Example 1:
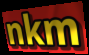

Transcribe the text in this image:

nkm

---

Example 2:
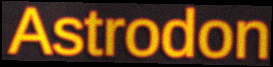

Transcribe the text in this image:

Astrodon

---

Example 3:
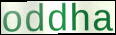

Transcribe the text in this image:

oddha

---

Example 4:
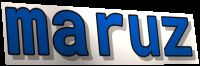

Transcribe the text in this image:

maruz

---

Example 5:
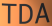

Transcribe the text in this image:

TDA